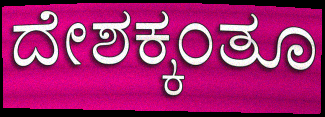
ದೇಶಕ್ಕಂತೂ